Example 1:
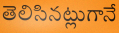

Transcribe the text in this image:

తెలిసినట్లుగానే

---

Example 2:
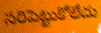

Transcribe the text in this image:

సరిపెట్టుకోలేదు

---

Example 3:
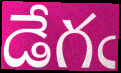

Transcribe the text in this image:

డేగఁ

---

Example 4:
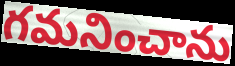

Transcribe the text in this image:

గమనించాను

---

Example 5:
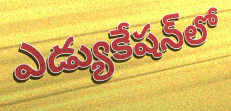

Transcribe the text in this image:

ఎడ్యుకేషన్‌లో